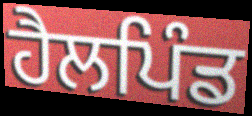
ਹੈਲਪਿੰਡ